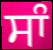
ਸਾੰ